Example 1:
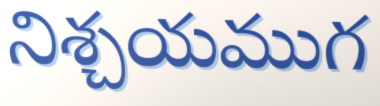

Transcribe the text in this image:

నిశ్చయముగ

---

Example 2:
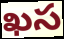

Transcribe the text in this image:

ఖస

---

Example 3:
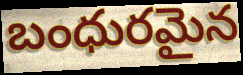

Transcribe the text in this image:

బంధురమైన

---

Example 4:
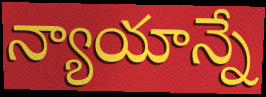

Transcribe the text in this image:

న్యాయాన్నే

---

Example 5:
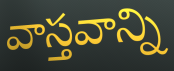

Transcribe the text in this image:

వాస్తవాన్ని